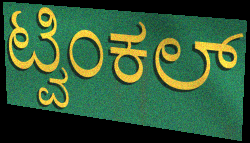
ಟ್ವಿಂಕಲ್